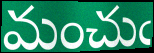
మంచుఁ